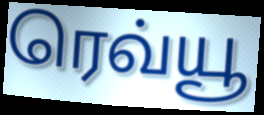
ரெவ்யூ